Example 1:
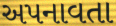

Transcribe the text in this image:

અપનાવતા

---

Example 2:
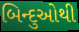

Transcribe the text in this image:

બિન્દુઓથી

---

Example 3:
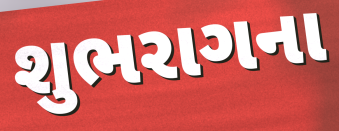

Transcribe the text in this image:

શુભરાગના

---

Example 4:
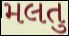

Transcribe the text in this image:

મલતુ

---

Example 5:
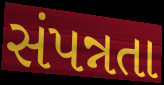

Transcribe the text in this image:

સંપન્નતા